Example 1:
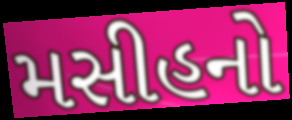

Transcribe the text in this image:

મસીહનો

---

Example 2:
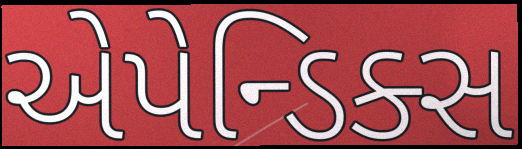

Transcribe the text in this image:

એપેન્ડિક્સ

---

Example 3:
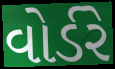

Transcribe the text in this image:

વોર્ડરે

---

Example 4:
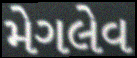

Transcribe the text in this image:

મેગલેવ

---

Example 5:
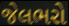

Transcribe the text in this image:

જેલભરો